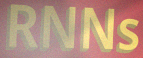
RNNs